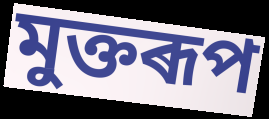
মুক্তৰূপ